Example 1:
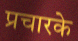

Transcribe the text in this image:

प्रचारके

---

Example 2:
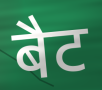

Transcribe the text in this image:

बैट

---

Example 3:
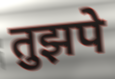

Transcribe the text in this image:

तुझपे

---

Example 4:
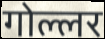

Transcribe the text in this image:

गोल्लर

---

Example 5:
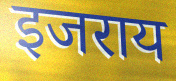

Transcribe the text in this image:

इजराय